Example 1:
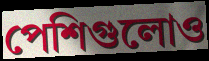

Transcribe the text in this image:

পেশিগুলোও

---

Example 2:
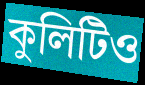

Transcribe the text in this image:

কুলিটিও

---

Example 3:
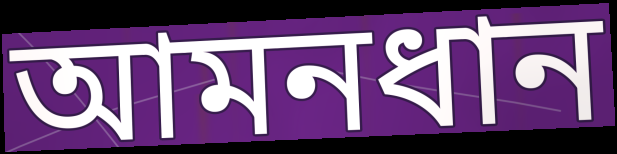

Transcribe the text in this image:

আমনধান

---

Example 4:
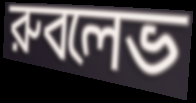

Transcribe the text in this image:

রুবলেভ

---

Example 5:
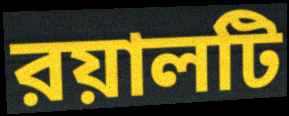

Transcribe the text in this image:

রয়ালটি